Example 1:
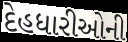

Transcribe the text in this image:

દેહધારીઓની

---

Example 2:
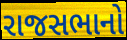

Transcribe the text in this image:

રાજસભાનો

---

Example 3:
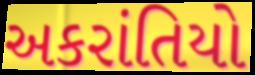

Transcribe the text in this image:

અકરાંતિયો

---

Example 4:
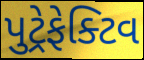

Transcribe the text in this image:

પુટ્રેફેક્ટિવ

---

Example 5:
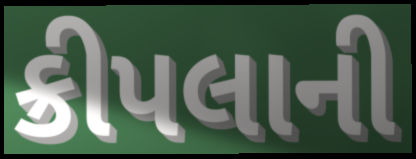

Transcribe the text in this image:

ક્રીપલાની